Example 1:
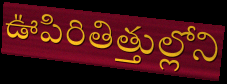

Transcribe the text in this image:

ఊపిరితిత్తుల్లోని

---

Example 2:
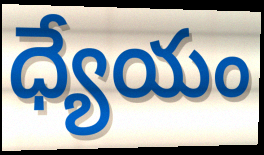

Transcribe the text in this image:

ధ్యేయం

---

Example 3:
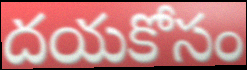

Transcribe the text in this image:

దయకోసం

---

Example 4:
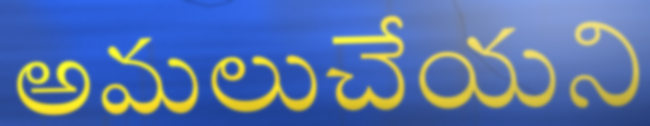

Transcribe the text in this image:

అమలుచేయని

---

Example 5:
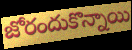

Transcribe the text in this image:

జోరందుకొన్నాయి